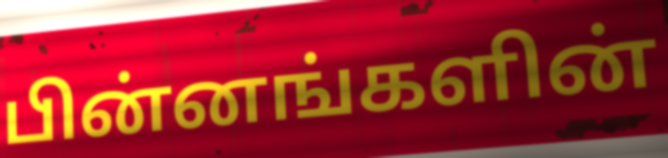
பின்னங்களின்